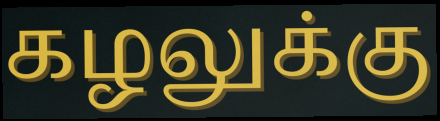
கழலுக்கு